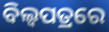
ବିଲ୍ଵପତ୍ରରେ